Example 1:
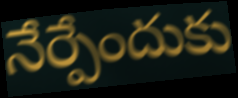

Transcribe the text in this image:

నేర్పేందుకు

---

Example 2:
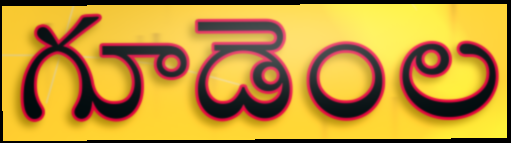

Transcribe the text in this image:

గూడెంల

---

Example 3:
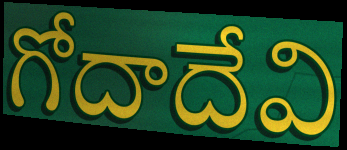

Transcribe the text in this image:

గోదాదేవి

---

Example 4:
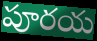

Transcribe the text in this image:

పూరయ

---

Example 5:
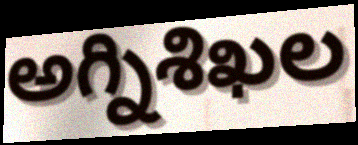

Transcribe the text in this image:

అగ్నిశిఖల